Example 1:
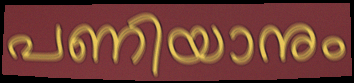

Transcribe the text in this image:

പണിയാനും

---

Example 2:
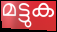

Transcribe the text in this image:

മട്ടുക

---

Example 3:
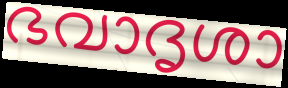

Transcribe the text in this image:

ഭവാദൃശാ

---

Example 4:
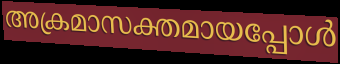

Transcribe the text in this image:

അക്രമാസക്തമായപ്പോൾ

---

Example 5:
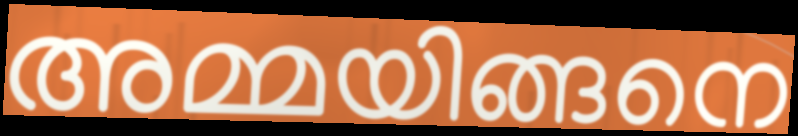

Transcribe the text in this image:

അമ്മയിങ്ങനെ